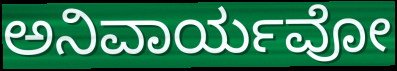
ಅನಿವಾರ್ಯವೋ